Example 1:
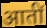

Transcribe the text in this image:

आतीं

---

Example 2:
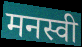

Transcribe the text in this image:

मनस्वी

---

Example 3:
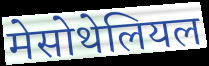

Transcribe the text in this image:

मेसोथेलियल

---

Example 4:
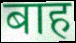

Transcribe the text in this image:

बाह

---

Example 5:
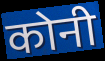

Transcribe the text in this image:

कोनी